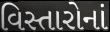
વિસ્તારોનાં